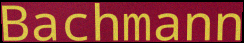
Bachmann